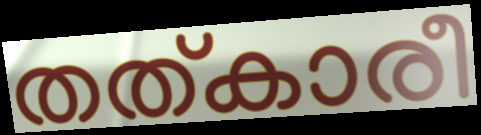
തത്കാരീ